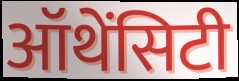
ऑथेंसिटी